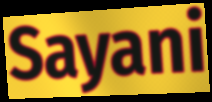
Sayani